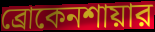
ব্রোকেনশায়ার